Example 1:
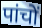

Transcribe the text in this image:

पांचों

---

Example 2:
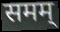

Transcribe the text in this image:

समम्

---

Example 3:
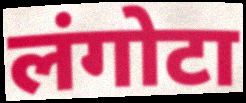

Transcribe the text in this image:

लंगोटा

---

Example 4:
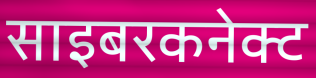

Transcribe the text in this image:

साइबरकनेक्ट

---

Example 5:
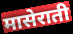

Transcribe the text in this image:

मासेराती